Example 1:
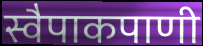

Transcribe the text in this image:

स्वैपाकपाणी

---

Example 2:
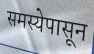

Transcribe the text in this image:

समस्येपासून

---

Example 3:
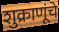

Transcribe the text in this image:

शुक्राणूंचे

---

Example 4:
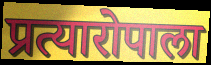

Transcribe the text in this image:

प्रत्यारोपाला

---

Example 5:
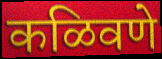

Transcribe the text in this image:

कळिवणे